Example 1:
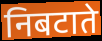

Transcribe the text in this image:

निबटाते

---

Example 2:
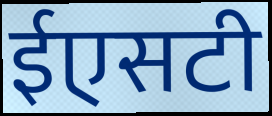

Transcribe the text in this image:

ईएसटी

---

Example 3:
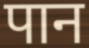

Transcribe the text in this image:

पान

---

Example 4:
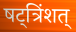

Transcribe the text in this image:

षट्त्रिंशत्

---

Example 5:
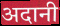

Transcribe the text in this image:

अदानी